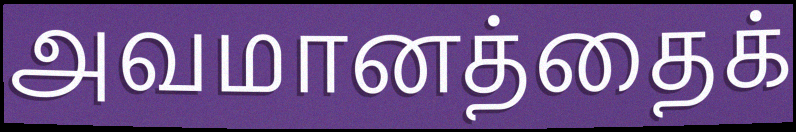
அவமானத்தைக்